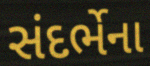
સંદર્ભેના